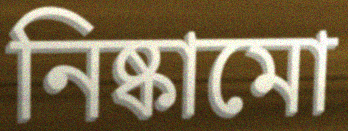
নিষ্কামো